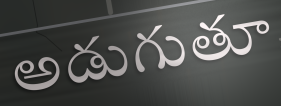
అడుగుతూ